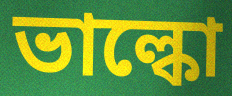
ভাল্কো